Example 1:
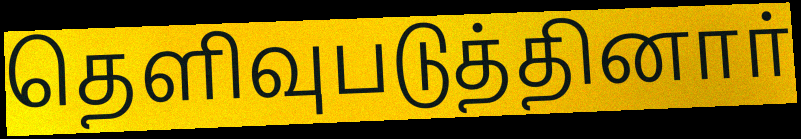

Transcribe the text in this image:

தெளிவுபடுத்தினார்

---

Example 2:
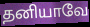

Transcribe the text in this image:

தனியாவே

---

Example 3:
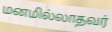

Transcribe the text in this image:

மனமில்லாதவர்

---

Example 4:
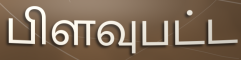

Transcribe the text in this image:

பிளவுபட்ட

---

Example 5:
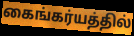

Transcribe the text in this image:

கைங்கர்யத்தில்